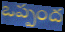
ఒప్పంద